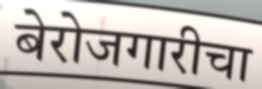
बेरोजगारीचा